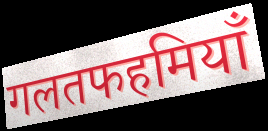
गलतफहमियाँ